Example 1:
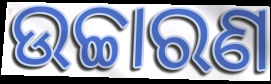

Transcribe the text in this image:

ଉଚ୍ଚାରଣ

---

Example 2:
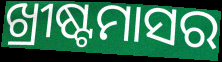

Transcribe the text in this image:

ଖ୍ରୀଷ୍ଟମାସର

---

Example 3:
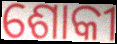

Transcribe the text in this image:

ଶୋକୀ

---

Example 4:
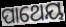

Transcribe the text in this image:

ପାଥେୟ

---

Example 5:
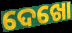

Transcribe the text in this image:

ଦେଖୋ